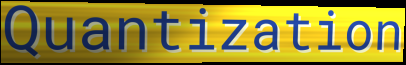
Quantization